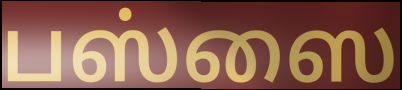
பஸ்ஸை